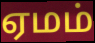
ஏமம்